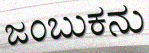
ಜಂಬುಕನು